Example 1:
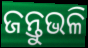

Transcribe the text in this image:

ଜନ୍ତୁଭଳି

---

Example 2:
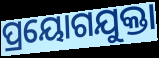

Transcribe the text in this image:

ପ୍ରୟୋଗଯୁକ୍ତା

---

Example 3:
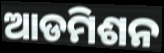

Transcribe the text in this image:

ଆଡମିଶନ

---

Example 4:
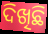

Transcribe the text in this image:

ଦିଖିଛି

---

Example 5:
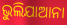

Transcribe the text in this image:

ଭୁଲିଯାଆନା